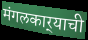
मंगलकार्याची